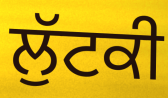
ਲੁੱਟਕੀ